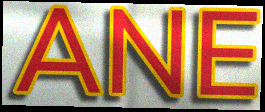
ANE